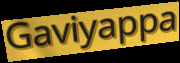
Gaviyappa